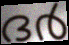
ദർ